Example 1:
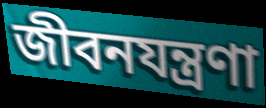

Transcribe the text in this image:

জীবনযন্ত্রণা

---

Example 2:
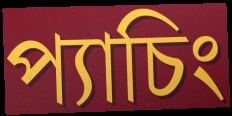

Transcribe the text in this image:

প্যাচিং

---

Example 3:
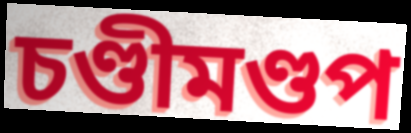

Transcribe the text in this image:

চণ্ডীমণ্ডপ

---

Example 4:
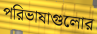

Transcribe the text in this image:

পরিভাষাগুলোর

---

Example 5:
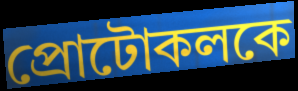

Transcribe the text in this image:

প্রোটোকলকে